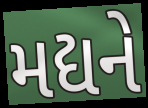
મદ્યને